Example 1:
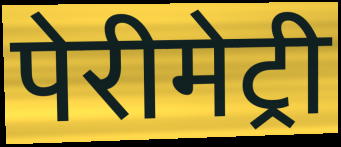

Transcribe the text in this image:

पेरीमेट्री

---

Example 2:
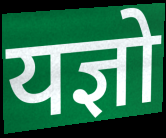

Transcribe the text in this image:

यज्ञो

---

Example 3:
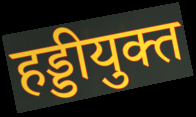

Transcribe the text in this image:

हड्डीयुक्त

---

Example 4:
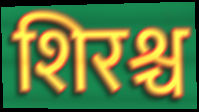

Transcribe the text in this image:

शिरश्च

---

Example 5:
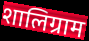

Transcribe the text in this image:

शालिग्राम